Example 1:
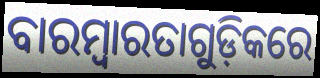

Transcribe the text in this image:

ବାରମ୍ବାରତାଗୁଡ଼ିକରେ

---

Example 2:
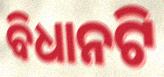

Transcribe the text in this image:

ବିଧାନଟି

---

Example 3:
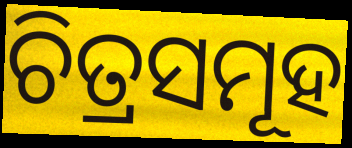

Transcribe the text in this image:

ଚିତ୍ରସମୂହ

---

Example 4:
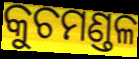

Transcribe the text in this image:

କୁଚମଣ୍ଡଳ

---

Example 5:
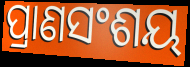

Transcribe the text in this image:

ପ୍ରାଣସଂଶୟ